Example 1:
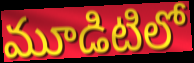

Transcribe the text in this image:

మూడిటిలో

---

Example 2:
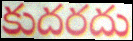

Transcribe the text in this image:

కుదరదు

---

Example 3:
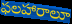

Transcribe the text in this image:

ఫలహారాలూ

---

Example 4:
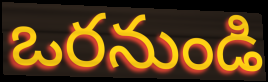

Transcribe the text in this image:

ఒరనుండి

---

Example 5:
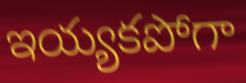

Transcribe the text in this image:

ఇయ్యకపోగా